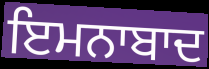
ਇਮਨਾਬਾਦ